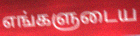
எங்களுடைய